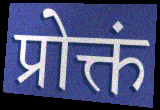
प्रोक्तं